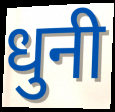
धुनी